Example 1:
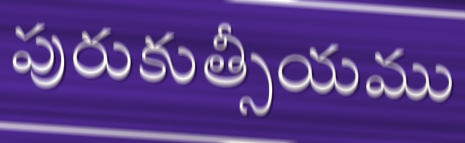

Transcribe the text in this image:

పురుకుత్సీయము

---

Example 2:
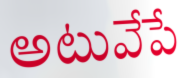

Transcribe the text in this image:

అటువేపే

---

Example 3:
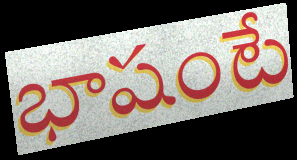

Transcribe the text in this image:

భాషంటే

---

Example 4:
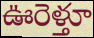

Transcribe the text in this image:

ఊరెళ్తూ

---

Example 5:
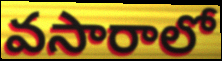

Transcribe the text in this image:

వసారాలో